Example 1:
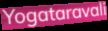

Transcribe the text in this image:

Yogataravali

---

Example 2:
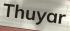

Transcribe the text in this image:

Thuyar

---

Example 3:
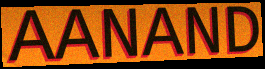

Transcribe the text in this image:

AANAND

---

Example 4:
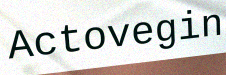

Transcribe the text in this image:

Actovegin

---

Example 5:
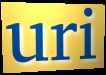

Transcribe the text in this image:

uri